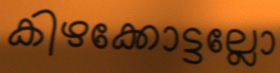
കിഴക്കോട്ടല്ലോ